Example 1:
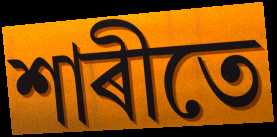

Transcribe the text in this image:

শাৰীতে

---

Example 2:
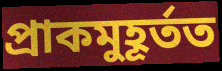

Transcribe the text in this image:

প্ৰাকমুহূৰ্তত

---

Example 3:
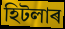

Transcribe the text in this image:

হিটলাৰ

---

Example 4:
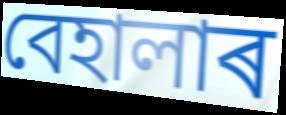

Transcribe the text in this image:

বেহালাৰ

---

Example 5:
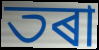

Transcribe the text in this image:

তৰা